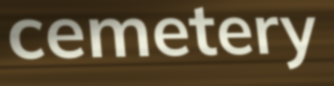
cemetery